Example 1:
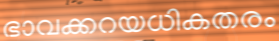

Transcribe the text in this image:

ഭാവക്കറയധികതരം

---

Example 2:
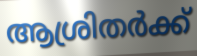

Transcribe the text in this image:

ആശ്രിതർക്ക്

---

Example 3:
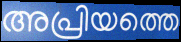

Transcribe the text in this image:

അപ്രിയത്തെ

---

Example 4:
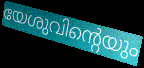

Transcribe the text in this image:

യേശുവിന്റെയും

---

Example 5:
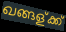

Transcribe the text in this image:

ഖങ്ങള്ക്ക്